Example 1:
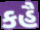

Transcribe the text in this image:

કહૈ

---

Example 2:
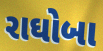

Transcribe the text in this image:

રાઘોબા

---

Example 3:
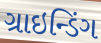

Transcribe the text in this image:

ગ્રાઇન્ડિંગ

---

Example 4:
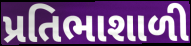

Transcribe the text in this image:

પ્રતિભાશાળી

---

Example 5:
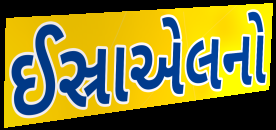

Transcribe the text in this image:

ઈસ્રાએલનો